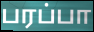
பரப்பா